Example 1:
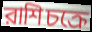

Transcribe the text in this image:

রাশিচক্রে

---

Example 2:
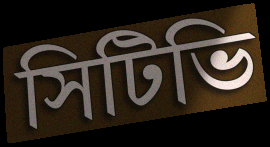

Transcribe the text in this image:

সিটিভি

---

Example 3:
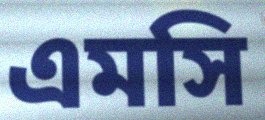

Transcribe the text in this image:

এমসি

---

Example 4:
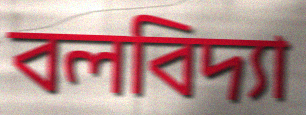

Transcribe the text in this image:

বলবিদ্যা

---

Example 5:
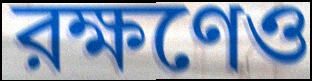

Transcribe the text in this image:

রক্ষণেও